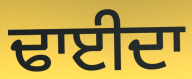
ਢਾਈਦਾ